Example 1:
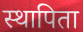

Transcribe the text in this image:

स्थापिता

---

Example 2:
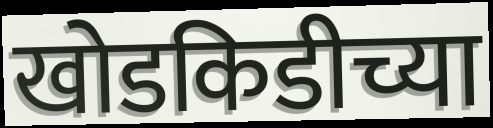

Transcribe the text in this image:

खोडकिडीच्या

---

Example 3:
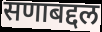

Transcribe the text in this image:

सणाबद्दल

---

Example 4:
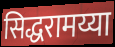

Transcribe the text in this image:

सिद्धरामय्या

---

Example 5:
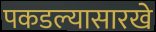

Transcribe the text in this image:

पकडल्यासारखे